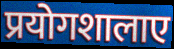
प्रयोगशालाए